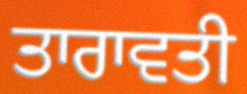
ਤਾਰਾਵਤੀ